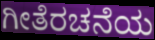
ಗೀತೆರಚನೆಯ